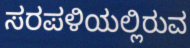
ಸರಪಳಿಯಲ್ಲಿರುವ